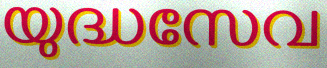
യുദ്ധസേവ